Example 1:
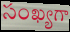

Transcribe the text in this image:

సంఖ్యగా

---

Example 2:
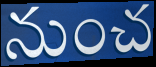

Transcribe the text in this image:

నుంచ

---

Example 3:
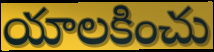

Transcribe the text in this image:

యాలకించు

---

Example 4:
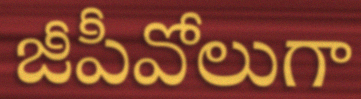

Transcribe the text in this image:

జీపీవోలుగా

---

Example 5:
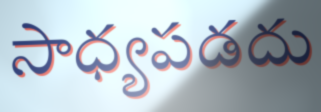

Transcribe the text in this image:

సాధ్యపడదు